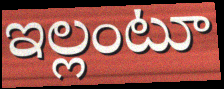
ఇల్లంటూ